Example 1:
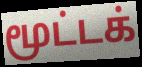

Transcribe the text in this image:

மூட்டக்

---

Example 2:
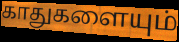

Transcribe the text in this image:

காதுகளையும்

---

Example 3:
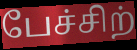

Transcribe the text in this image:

பேச்சிற்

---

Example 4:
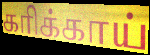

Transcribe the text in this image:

கரிக்காய்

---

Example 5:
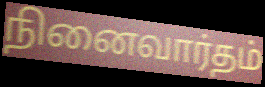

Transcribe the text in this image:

நினைவார்தம்